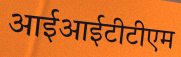
आईआईटीटीएम